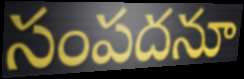
సంపదనూ